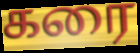
கரை